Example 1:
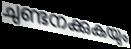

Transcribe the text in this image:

ചുണ്ടനക്കുകയും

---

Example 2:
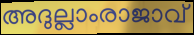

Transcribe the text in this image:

അദുല്ലാംരാജാവ്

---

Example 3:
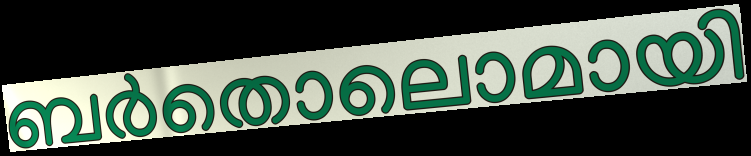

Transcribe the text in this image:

ബർതൊലൊമായി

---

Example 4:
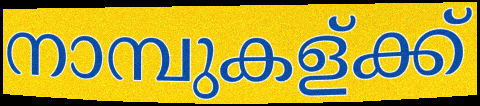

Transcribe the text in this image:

നാമ്പുകള്ക്ക്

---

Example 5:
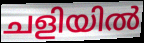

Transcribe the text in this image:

ചളിയിൽ